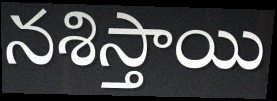
నశిస్తాయి